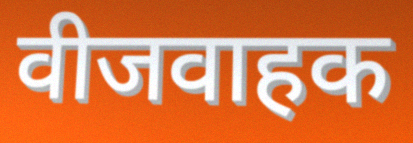
वीजवाहक